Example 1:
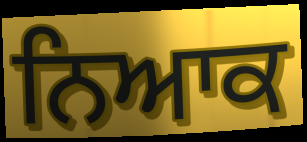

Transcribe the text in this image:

ਨਿਆਕ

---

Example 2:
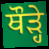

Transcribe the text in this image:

ਥੌੜ੍ਹੇ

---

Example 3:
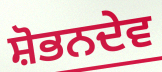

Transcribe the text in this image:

ਸ਼ੋਭਨਦੇਵ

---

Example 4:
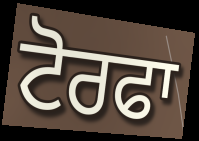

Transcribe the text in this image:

ਟੋਰਫਾ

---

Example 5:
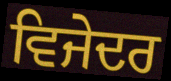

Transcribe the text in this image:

ਵਿਜੇਦਰ